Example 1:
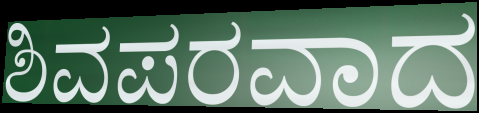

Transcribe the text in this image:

ಶಿವಪರವಾದ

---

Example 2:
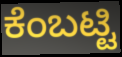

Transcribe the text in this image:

ಕೆಂಬಟ್ಟಿ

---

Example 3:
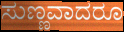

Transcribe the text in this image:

ಸುಣ್ಣವಾದರೂ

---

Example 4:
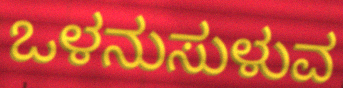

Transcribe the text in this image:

ಒಳನುಸುಳುವ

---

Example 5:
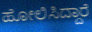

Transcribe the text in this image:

ಹೋಲಿಸಿದ್ದಾರೆ